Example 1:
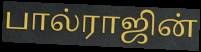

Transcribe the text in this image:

பால்ராஜின்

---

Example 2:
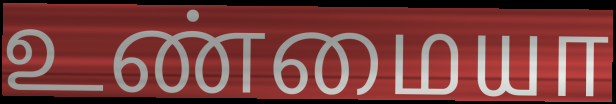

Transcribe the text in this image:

உண்மையா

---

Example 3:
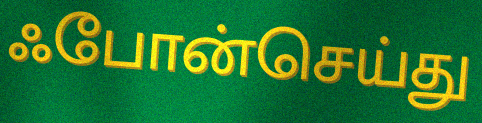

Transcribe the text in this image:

ஃபோன்செய்து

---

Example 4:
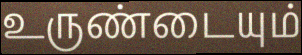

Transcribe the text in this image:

உருண்டையும்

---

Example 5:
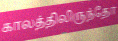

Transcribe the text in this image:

காலத்திலிருந்தோ